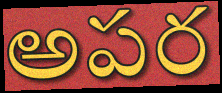
అపర